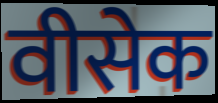
वीसेक